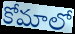
కోమాలో